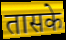
तासके